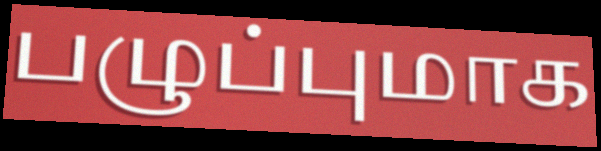
பழுப்புமாக